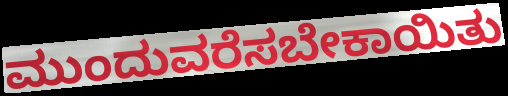
ಮುಂದುವರೆಸಬೇಕಾಯಿತು